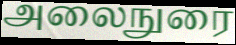
அலைநுரை